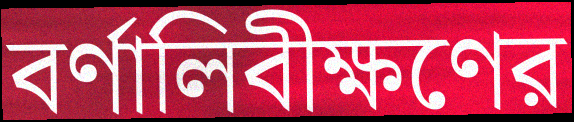
বর্ণালিবীক্ষণের